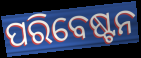
ପରିବେଷ୍ଟନ